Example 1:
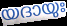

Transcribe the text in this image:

യദായുഃ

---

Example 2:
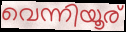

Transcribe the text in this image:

വെന്നിയൂര്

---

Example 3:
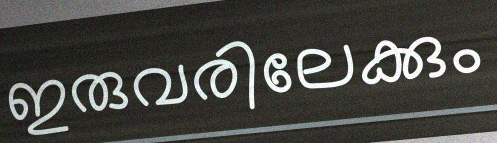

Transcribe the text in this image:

ഇരുവരിലേക്കും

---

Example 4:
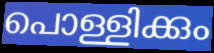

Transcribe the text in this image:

പൊള്ളിക്കും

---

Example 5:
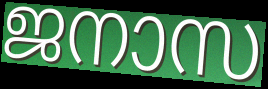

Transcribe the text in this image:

ജനാസ